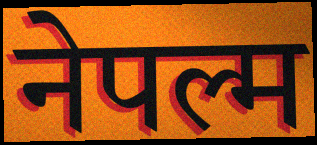
नेपल्म